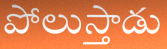
పోలుస్తాడు